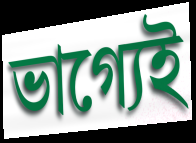
ভাগ্যেই